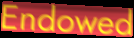
Endowed